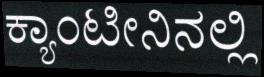
ಕ್ಯಾಂಟೀನಿನಲ್ಲಿ